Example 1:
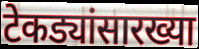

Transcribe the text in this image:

टेकड्यांसारख्या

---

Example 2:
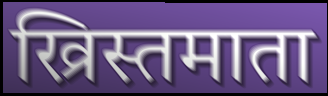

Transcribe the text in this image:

ख्रिस्तमाता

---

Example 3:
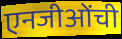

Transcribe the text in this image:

एनजीओंची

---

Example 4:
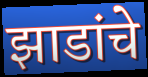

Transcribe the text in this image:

झाडांचे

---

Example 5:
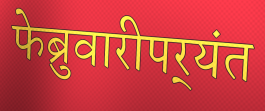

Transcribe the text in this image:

फेब्रुवारीपर्यंत